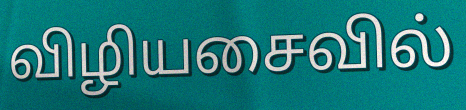
விழியசைவில்